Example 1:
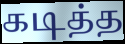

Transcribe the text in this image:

கடித்த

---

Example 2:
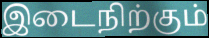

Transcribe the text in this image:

இடைநிற்கும்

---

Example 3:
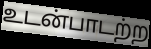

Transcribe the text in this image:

உடன்பாடற்ற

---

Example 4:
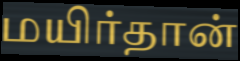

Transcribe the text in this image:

மயிர்தான்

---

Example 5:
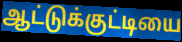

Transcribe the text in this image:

ஆட்டுக்குட்டியை